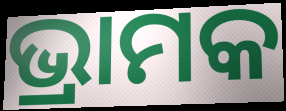
ଭ୍ରାମକ